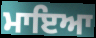
ਮਾਇਆ